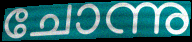
ചോന്നു